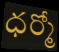
ధర్మో